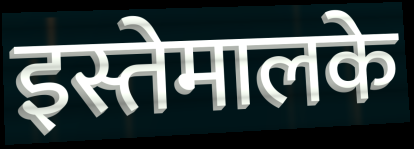
इस्तेमालके